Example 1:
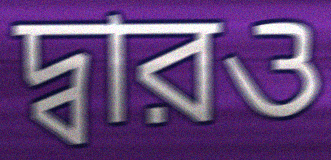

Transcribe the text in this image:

দ্বারও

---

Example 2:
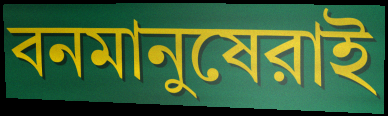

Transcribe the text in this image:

বনমানুষেরাই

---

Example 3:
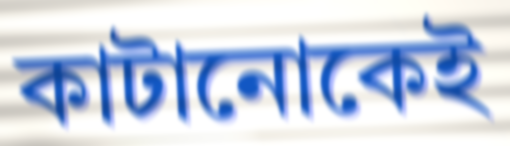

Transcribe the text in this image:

কাটানোকেই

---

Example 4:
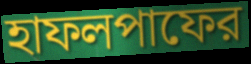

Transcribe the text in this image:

হাফলপাফের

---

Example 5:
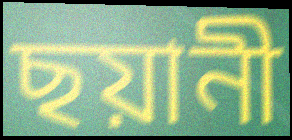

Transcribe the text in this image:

ছয়ানী